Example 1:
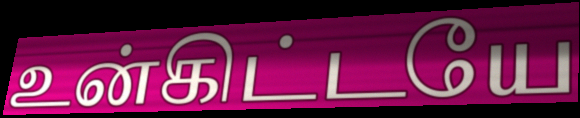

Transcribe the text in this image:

உன்கிட்டயே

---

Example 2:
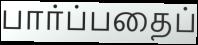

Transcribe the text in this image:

பார்ப்பதைப்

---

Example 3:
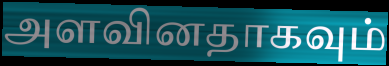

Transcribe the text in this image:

அளவினதாகவும்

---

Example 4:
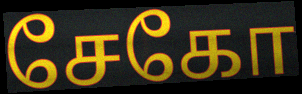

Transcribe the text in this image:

சேகோ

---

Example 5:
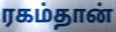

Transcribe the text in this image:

ரகம்தான்